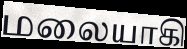
மலையாகி